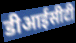
डीआईसीटी